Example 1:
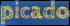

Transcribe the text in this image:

picado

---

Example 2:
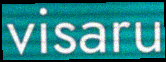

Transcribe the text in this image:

visaru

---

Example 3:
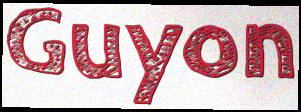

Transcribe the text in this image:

Guyon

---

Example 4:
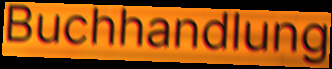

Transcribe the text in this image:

Buchhandlung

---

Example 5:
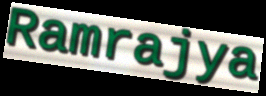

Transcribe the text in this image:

Ramrajya